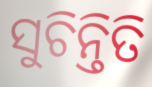
ସୁଚିନ୍ତିତି